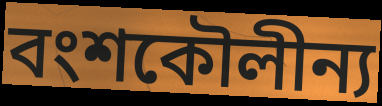
বংশকৌলীন্য